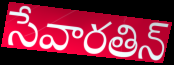
సేవారతిన్